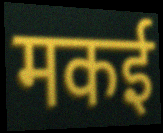
मकई